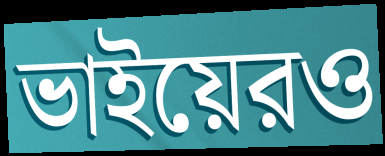
ভাইয়েরও